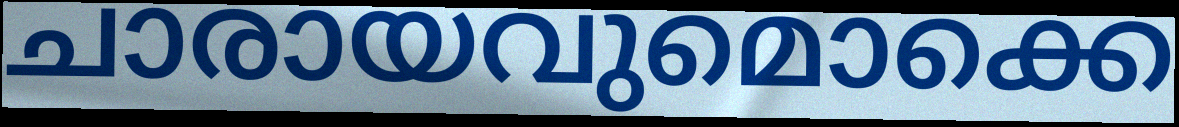
ചാരായവുമൊക്കെ